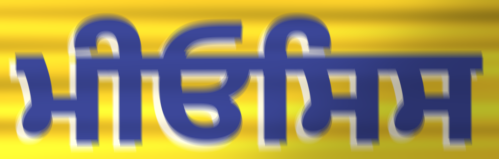
ਮੀਓਸਿਸ